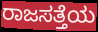
ರಾಜಸತ್ತೆಯ